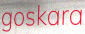
goskara